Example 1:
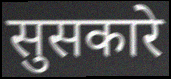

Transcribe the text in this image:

सुसकारे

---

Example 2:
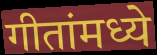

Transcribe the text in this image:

गीतांमध्ये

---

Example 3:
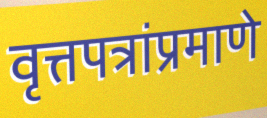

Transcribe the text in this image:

वृत्तपत्रांप्रमाणे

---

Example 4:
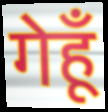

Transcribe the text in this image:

गेहूँ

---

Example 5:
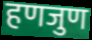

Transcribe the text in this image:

हणजुण